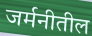
जर्मनीतील